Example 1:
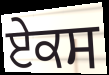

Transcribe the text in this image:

ਏਕਸ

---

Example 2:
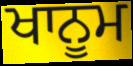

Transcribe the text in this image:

ਖਾਨੂਮ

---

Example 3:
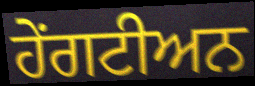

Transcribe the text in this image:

ਹੇਂਗਟੀਅਨ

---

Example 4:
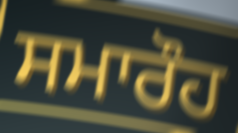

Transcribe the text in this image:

ਸਮਾਰੌਹ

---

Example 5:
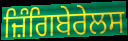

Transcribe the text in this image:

ਜ਼ਿੰਗਿਬੇਰੇਲਸ